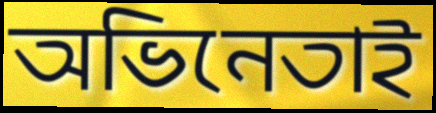
অভিনেতাই